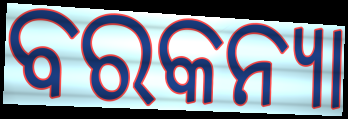
ବରକନ୍ୟା